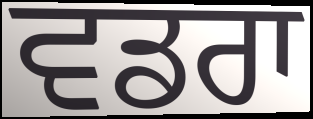
ਵਡਰਾ